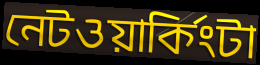
নেটওয়ার্কিংটা